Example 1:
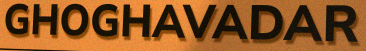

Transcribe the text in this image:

GHOGHAVADAR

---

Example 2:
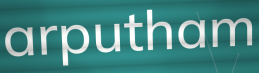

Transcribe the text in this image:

arputham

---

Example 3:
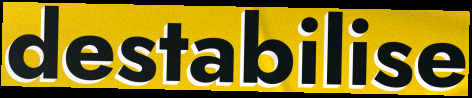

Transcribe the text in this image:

destabilise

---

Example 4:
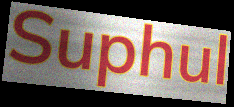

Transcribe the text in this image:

Suphul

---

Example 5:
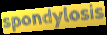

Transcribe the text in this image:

spondylosis